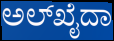
ಅಲ್‌ಖೈದಾ